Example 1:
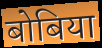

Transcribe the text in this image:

बोबिया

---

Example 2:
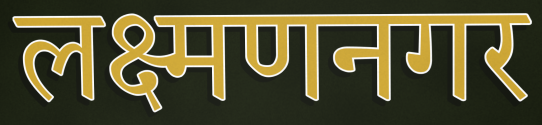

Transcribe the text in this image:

लक्ष्मणनगर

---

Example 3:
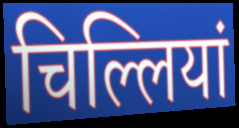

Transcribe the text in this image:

चिल्लियां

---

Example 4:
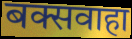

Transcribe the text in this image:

बक्सवाहा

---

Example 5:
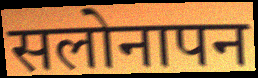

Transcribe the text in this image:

सलोनापन